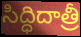
సిద్ధిదాత్రీ